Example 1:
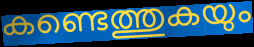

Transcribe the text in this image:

കണ്ടെത്തുകയും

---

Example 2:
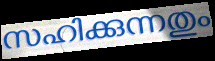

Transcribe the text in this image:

സഹിക്കുന്നതും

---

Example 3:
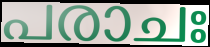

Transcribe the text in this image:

പരാചഃ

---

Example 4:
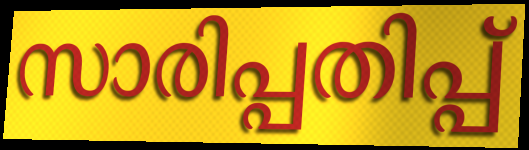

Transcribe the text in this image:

സാരിപ്പതിപ്പ്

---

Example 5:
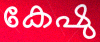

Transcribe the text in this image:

കേഷു